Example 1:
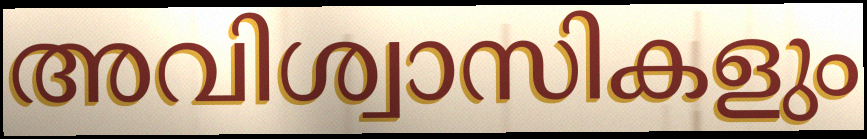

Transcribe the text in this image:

അവിശ്വാസികളും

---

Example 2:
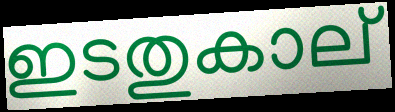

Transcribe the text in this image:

ഇടതുകാല്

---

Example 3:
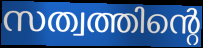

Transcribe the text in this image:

സത്വത്തിന്റെ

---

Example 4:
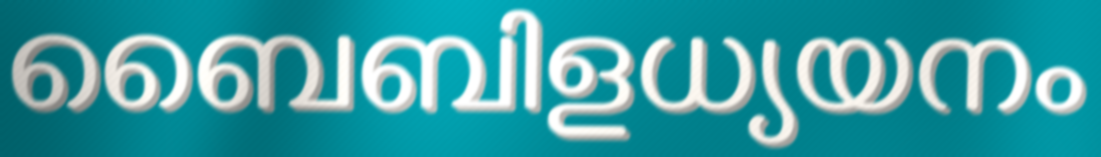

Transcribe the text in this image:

ബൈബിളധ്യയനം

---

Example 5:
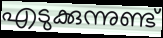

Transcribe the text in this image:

എടുക്കുന്നുണ്ട്